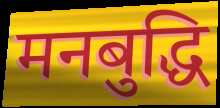
मनबुद्धि